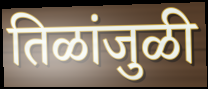
तिळांजुळी